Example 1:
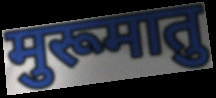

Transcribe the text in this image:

मुरूमातु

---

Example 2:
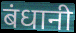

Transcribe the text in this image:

बंधानी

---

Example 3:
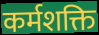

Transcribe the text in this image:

कर्मशक्ति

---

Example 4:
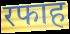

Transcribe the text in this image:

रफाह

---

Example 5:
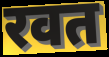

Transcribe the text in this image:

रवत